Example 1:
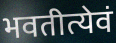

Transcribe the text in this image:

भवतीत्येवं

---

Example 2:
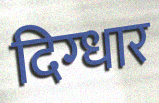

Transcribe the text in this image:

दिग्धार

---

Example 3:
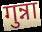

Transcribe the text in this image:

गुन्ना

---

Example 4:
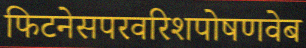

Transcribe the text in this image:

फिटनेसपरवरिशपोषणवेब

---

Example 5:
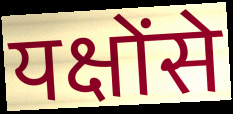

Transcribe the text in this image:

यक्षोंसे